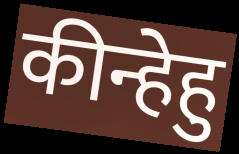
कीन्हेहु